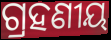
ଗ୍ରହଣୀୟ